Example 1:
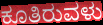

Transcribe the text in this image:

ಕೂತಿರುವಳು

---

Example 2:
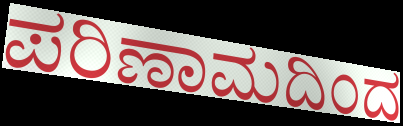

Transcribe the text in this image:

ಪರಿಣಾಮದಿಂದ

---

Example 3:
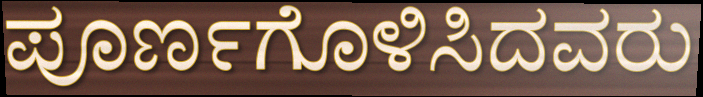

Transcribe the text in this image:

ಪೂರ್ಣಗೊಳಿಸಿದವರು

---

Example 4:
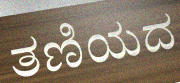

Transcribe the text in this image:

ತಣಿಯದ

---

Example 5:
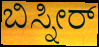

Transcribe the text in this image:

ಬಿಸ್ನೀರ್